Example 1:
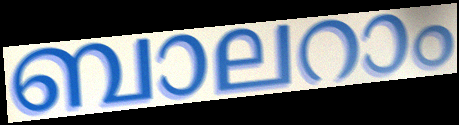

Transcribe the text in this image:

ബാലറാം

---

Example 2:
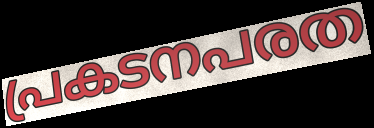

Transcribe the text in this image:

പ്രകടനപരത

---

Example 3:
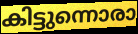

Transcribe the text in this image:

കിട്ടുന്നൊരാ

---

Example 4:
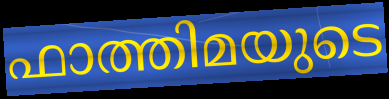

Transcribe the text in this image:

ഫാത്തിമയുടെ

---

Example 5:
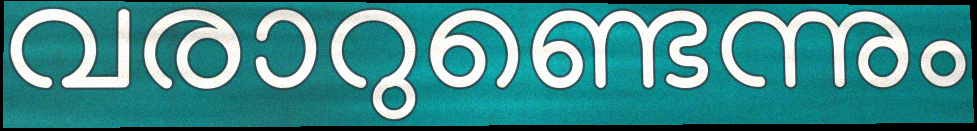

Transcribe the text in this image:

വരാറുണ്ടെന്നും